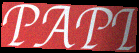
PAPI